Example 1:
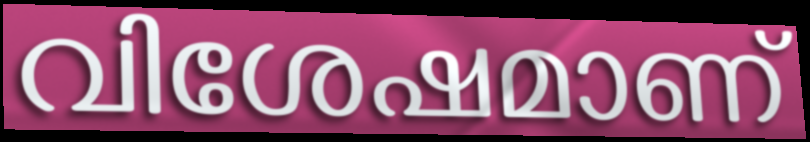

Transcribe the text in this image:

വിശേഷമാണ്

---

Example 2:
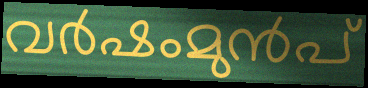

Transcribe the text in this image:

വർഷംമുൻപ്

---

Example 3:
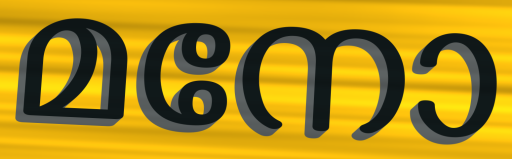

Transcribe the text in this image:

മനോ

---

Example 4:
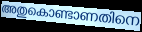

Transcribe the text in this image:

അതുകൊണ്ടാണതിനെ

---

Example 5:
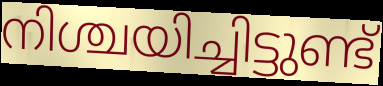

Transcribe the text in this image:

നിശ്ചയിച്ചിട്ടുണ്ട്